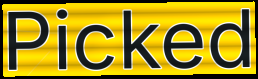
Picked